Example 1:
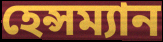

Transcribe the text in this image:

হেন্সম্যান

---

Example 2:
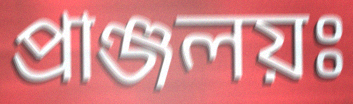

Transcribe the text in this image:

প্রাঞ্জলয়ঃ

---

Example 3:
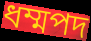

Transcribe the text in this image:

ধম্মপদ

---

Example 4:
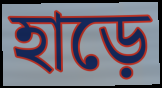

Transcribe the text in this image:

হাড়ে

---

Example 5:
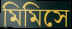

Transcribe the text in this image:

মিমিসে